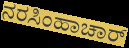
ನರಸಿಂಹಾಚಾರ್